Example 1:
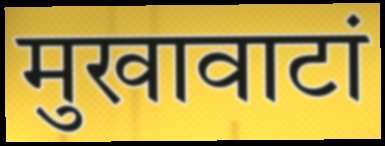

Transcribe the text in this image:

मुखावाटां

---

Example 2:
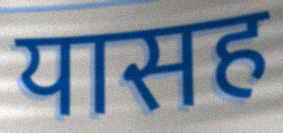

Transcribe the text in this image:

यासह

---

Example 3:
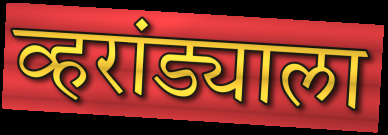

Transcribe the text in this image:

व्हरांड्याला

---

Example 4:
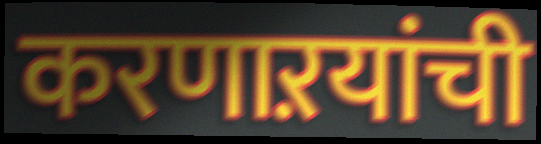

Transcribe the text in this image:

करणाऱयांची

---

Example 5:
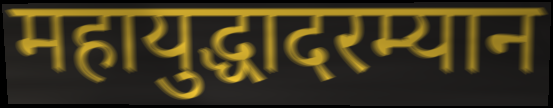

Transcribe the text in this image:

महायुद्धादरम्यान